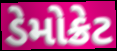
ડેમોક્રેટ